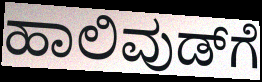
ಹಾಲಿವುಡ್‌ಗೆ